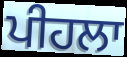
ਪੀਹਲਾ